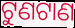
ଟୁଣଟାଣ